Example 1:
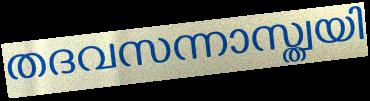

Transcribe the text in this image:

തദവസന്നാസ്ത്വയി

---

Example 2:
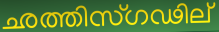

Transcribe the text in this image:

ഛത്തിസ്ഗഢില്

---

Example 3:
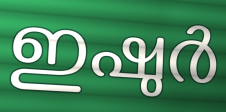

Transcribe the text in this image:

ഇഷുർ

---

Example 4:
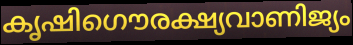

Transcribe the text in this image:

കൃഷിഗൌരക്ഷ്യവാണിജ്യം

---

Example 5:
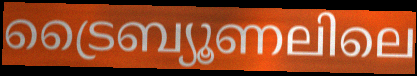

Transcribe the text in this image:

ട്രൈബ്യൂണലിലെ